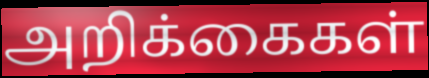
அறிக்கைகள்